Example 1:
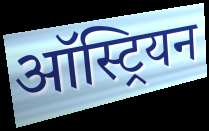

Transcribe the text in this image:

ऑस्ट्रियन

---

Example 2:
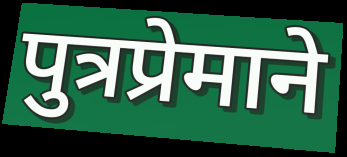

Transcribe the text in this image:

पुत्रप्रेमाने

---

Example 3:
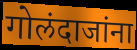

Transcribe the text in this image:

गोलंदाजांना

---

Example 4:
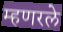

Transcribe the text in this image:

म्हणरले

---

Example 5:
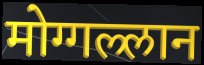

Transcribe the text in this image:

मोग्गल्लान